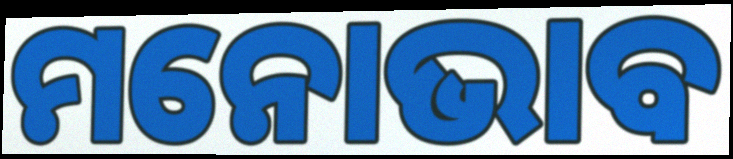
ମନୋଭାବ